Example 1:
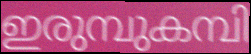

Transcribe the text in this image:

ഇരുമ്പുകമ്പി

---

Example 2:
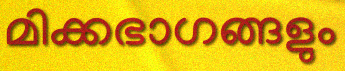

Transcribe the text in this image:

മിക്കഭാഗങ്ങളും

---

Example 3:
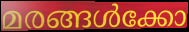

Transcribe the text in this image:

മരങ്ങൾക്കോ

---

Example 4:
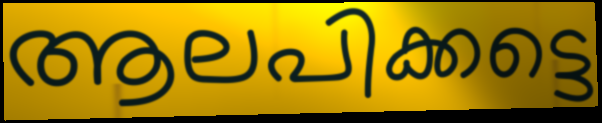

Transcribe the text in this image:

ആലപിക്കട്ടെ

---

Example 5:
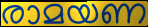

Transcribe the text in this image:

രാമയണ